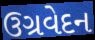
ઉગ્રવેદન